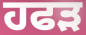
ਹਫੜ